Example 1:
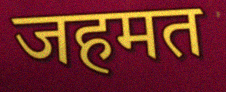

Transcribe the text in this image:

जहमत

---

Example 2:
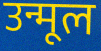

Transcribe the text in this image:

उन्मूल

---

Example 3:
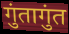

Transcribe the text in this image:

गुंतागुंत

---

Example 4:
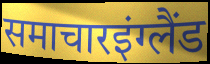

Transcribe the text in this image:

समाचारइंग्लैंड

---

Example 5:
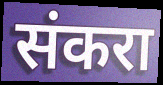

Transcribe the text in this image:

संकरा